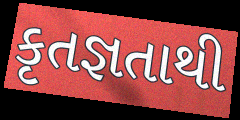
કૃતજ્ઞતાથી